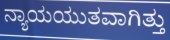
ನ್ಯಾಯಯುತವಾಗಿತ್ತು